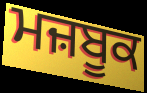
ਮਜ਼ਬੂਕ